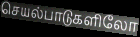
செயல்பாடுகளிலோ